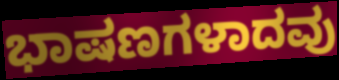
ಭಾಷಣಗಳಾದವು